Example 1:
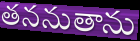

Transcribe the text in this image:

తననుతాను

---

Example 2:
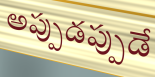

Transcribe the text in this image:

అప్పుడప్పుడే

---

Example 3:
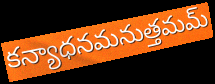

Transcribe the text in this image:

కన్యాధనమనుత్తమమ్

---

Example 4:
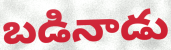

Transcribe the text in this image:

బడినాడు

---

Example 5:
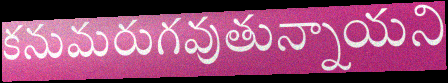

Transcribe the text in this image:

కనుమరుగవుతున్నాయని